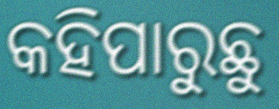
କହିପାରୁଛୁ